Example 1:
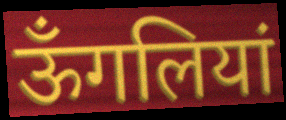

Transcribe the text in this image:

ऊँगलियां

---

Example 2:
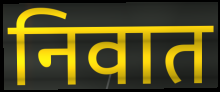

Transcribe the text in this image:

निवात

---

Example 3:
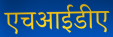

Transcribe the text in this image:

एचआईडीए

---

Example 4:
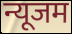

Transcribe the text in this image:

न्यूजम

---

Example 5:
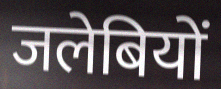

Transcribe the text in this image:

जलेबियों